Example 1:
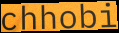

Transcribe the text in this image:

chhobi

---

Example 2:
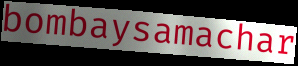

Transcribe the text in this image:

bombaysamachar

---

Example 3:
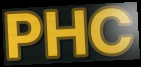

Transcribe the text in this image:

PHC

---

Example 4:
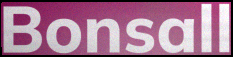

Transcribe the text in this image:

Bonsall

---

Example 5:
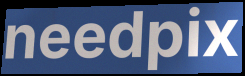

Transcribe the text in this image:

needpix